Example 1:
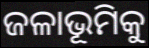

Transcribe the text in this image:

ଜଳାଭୂମିକୁ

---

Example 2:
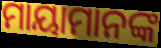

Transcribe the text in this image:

ମାୟାମାନଙ୍କ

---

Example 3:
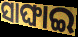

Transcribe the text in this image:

ସାଙ୍ଘାଇ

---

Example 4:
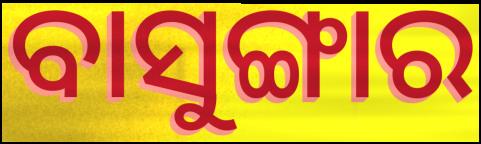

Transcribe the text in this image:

ବାସୁଙ୍ଗାର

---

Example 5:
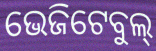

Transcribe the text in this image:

ଭେଜିଟେବୁଲ୍